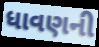
ધાવણની